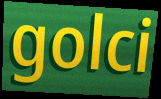
golci